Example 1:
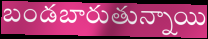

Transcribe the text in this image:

బండబారుతున్నాయి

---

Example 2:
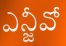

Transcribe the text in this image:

ఎన్జీవో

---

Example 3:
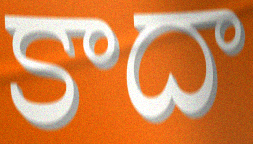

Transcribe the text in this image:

కాదా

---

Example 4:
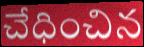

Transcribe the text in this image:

చేధించిన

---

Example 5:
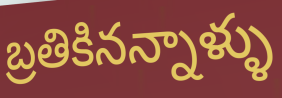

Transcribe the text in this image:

బ్రతికినన్నాళ్ళు